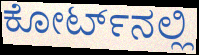
ಕೋರ್ಟ್‌ನಲ್ಲಿ